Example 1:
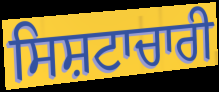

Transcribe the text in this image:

ਸਿਸ਼ਟਾਚਾਰੀ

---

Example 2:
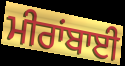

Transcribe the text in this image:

ਮੀਰਾਂਬਾਈ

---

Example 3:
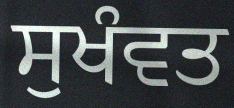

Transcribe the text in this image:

ਸੁਖੰਵਤ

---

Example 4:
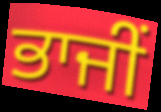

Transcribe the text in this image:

ਭਾਜੀਂ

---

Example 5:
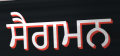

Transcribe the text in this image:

ਸੈਗਮਨ